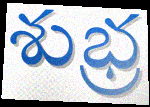
శుభ్ర